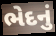
ભેદનું